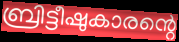
ബ്രിട്ടീഷുകാരന്റെ